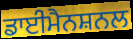
ਡਾਈਮੈਨਸ਼ਨਲ